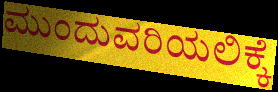
ಮುಂದುವರಿಯಲಿಕ್ಕೆ